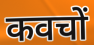
कवचों